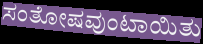
ಸಂತೋಷವುಂಟಾಯಿತು